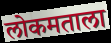
लोकमताला